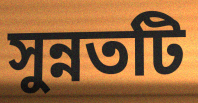
সুন্নতটি